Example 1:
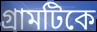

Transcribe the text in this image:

গ্রামটিকে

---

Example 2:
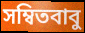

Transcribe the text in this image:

সম্বিতবাবু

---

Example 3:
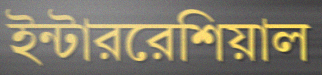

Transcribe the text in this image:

ইন্টাররেশিয়াল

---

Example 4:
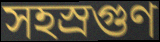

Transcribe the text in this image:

সহস্রগুণ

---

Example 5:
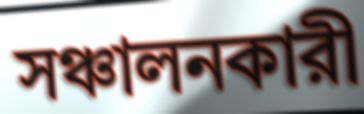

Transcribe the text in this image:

সঞ্চালনকারী